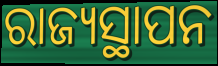
ରାଜ୍ୟସ୍ଥାପନ